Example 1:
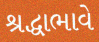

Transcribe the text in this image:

શ્રદ્ધાભાવે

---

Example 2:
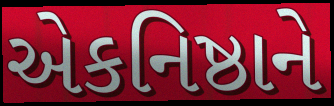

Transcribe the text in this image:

એકનિષ્ઠાને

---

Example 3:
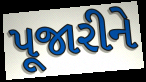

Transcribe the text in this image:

પૂજારીને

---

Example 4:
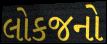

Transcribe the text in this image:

લોકજનો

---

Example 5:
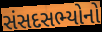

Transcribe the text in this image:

સંસદસભ્યોનો